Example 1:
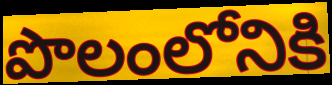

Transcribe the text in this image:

పొలంలోనికి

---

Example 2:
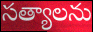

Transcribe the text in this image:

సత్యాలను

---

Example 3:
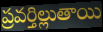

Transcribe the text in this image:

ప్రవర్తిల్లుతాయి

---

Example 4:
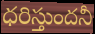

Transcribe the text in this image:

ధరిస్తుందనీ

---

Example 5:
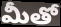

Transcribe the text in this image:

మీతో